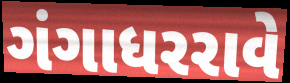
ગંગાધરરાવે